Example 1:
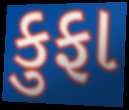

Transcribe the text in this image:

કુફા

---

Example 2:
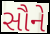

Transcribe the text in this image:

સૌને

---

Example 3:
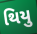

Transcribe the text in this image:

થિયુ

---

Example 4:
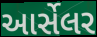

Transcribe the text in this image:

આર્સેલર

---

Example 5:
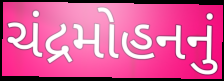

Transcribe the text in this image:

ચંદ્રમોહનનું